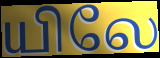
யிலே